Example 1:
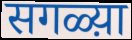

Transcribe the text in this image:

सगळ्य़ा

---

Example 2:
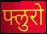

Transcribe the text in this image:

फ्लुरो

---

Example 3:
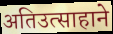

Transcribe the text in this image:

अतिउत्साहाने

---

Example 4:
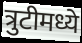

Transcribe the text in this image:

त्रुटीमध्ये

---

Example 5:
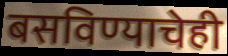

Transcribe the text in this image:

बसविण्याचेही